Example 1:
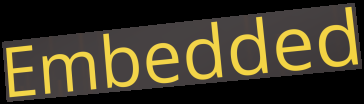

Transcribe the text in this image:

Embedded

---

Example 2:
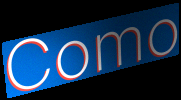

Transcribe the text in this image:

Como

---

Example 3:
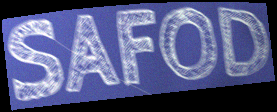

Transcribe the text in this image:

SAFOD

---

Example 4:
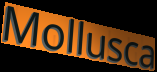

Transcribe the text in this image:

Mollusca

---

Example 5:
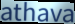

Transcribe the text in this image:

athava